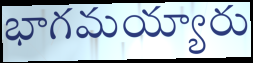
భాగమయ్యారు